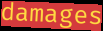
damages